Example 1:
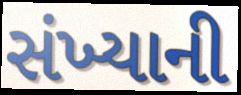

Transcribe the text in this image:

સંખ્યાની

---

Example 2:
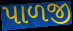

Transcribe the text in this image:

પાળજી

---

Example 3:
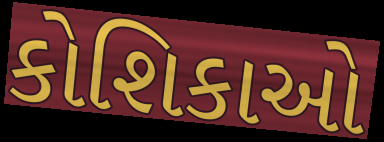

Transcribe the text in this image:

કોશિકાઓ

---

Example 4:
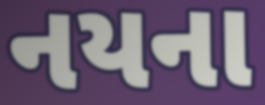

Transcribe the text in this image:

નયના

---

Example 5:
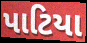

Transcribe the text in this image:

પાટિયા